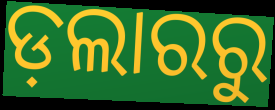
ଡ଼ଲାରରୁ